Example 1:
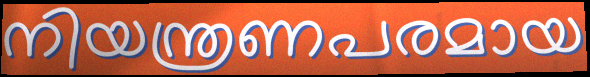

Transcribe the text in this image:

നിയന്ത്രണപരമായ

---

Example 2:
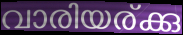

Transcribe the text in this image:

വാരിയര്ക്കു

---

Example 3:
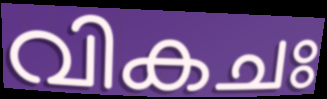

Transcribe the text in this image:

വികചഃ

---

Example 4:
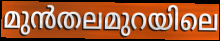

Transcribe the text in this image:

മുൻതലമുറയിലെ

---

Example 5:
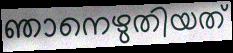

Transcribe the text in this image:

ഞാനെഴുതിയത്